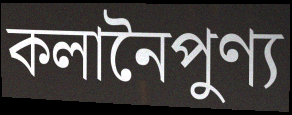
কলানৈপুণ্য